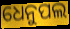
ଧେନୁପଲ